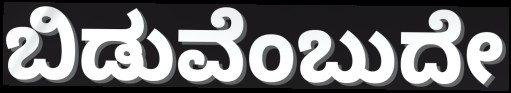
ಬಿಡುವೆಂಬುದೇ